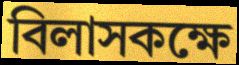
বিলাসকক্ষে